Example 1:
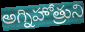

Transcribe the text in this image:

అగ్నిహోత్రుని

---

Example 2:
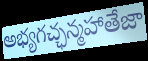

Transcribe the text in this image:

అభ్యగచ్ఛన్మహాతేజా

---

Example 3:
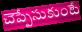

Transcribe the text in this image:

చెప్పేసుకుంటే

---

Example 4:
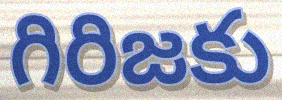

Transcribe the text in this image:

గిరిజకు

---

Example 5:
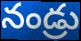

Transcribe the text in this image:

నండ్రు